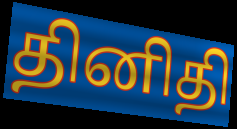
தினிதி